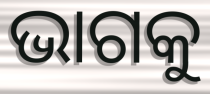
ଭାଗକୁ